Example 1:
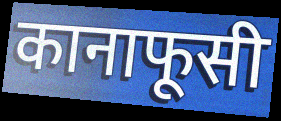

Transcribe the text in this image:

कानाफूसी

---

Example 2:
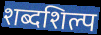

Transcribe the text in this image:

शब्दशिल्प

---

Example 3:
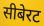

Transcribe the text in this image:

सीबेरट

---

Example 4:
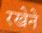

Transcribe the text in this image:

रखेने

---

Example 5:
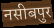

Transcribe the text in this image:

नसीबपुर